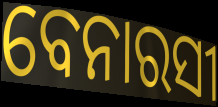
ବେନାରସୀ